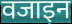
वजाइन